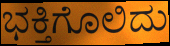
ಭಕ್ತಿಗೊಲಿದು